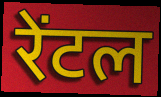
रेंटल